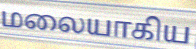
மலையாகிய